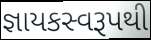
જ્ઞાયકસ્વરૂપથી